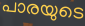
പാരയുടെ